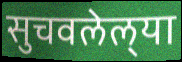
सुचवलेल्या